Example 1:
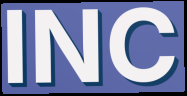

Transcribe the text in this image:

INC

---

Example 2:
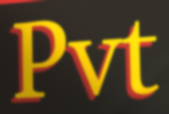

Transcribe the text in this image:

Pvt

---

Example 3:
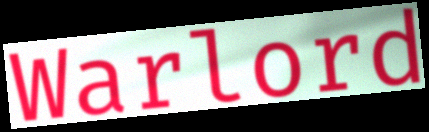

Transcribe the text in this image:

Warlord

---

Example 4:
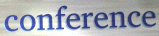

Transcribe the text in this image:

conference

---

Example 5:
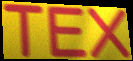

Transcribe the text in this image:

TEX